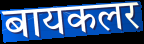
बायकलर